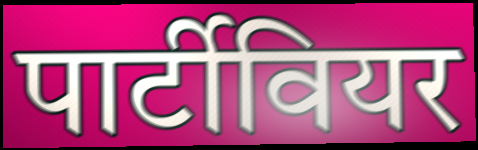
पार्टीवियर